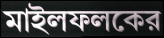
মাইলফলকের